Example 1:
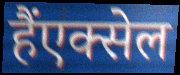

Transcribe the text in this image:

हैंएक्सेल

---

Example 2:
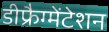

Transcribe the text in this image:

डीफ्रैग्मेंटेशन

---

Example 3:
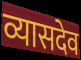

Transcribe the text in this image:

व्यासदेव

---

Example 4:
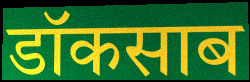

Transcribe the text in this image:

डॉकसाब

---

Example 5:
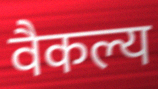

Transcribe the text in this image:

वैकल्य